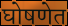
घोषणेत